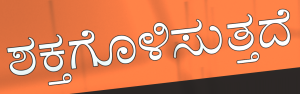
ಶಕ್ತಗೊಳಿಸುತ್ತದೆ